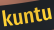
kuntu